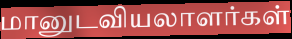
மானுடவியலாளர்கள்